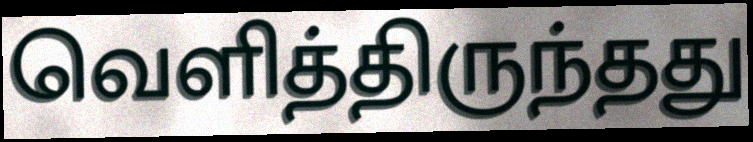
வெளித்திருந்தது